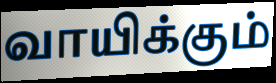
வாயிக்கும்